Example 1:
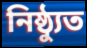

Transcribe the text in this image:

নিষ্ঠ্যুত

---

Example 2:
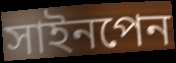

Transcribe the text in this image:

সাইনপেন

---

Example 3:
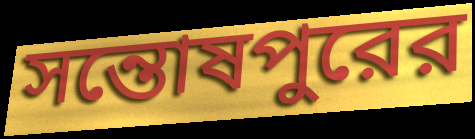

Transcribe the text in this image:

সন্তোষপুরের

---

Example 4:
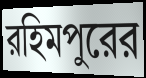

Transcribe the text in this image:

রহিমপুরের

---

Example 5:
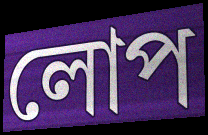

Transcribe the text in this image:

লোপ